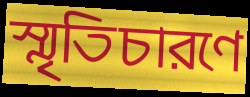
স্মৃতিচারণে